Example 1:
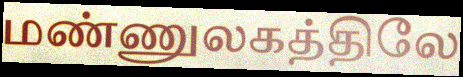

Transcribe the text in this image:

மண்ணுலகத்திலே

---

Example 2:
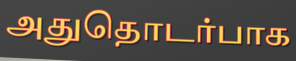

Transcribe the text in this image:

அதுதொடர்பாக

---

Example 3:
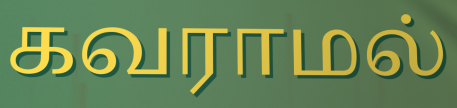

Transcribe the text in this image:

கவராமல்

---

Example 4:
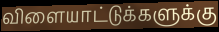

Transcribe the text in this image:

விளையாட்டுக்களுக்கு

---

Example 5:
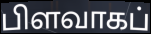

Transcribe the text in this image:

பிளவாகப்